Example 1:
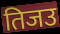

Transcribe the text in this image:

तिजउ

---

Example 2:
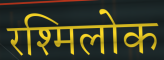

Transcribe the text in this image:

रश्मिलोक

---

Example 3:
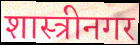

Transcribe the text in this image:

शास्त्रीनगर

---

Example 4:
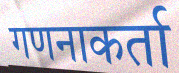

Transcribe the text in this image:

गणनाकर्ता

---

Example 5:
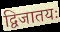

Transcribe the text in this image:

द्विजातयः